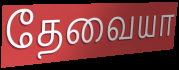
தேவையா